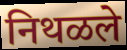
निथळले